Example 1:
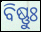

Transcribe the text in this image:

ବିଷ୍ଣୁଃ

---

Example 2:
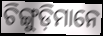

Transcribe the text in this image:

ଚିଙ୍ଗୁଡ଼ିମାନେ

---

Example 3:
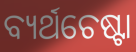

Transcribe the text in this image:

ବ୍ୟର୍ଥଚେଷ୍ଟା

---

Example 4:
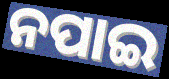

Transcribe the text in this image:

ନପାଇ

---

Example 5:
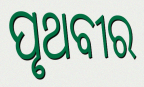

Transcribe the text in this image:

ପୃଥବୀର